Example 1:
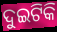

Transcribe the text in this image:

ଦୁଇଟିକି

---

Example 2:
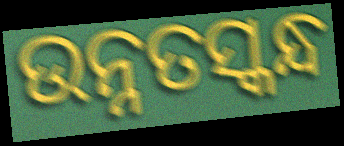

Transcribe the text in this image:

ଉନ୍ନତସ୍କନ୍ଧ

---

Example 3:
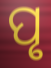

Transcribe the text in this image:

ପୃ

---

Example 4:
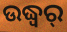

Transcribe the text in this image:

ଉଦ୍ଧ୍ୱର୍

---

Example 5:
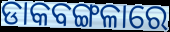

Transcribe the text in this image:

ଡାକବଙ୍ଗଳାରେ